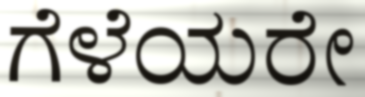
ಗೆಳೆಯರೇ